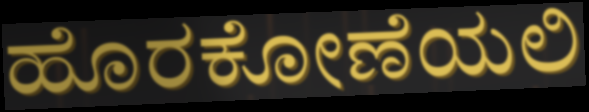
ಹೊರಕೋಣೆಯಲಿ